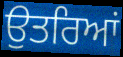
ਉਤਰਿਆਂ